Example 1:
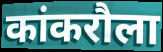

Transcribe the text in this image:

कांकरौला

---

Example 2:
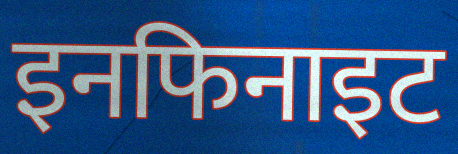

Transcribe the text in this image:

इनफिनाइट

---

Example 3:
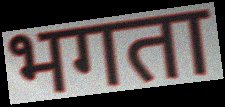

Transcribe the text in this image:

भगता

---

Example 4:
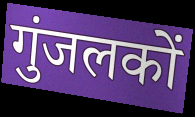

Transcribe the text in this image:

गुंजलकों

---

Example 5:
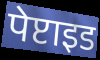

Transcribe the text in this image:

पेप्टाइड